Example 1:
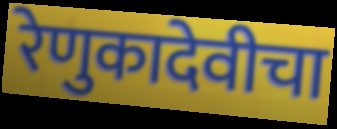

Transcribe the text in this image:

रेणुकादेवीचा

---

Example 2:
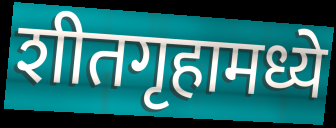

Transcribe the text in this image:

शीतगृहामध्ये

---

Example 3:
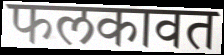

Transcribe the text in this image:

फलकावत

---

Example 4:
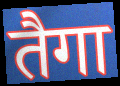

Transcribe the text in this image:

तैगा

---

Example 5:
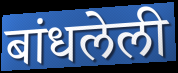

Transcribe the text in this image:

बांधलेली